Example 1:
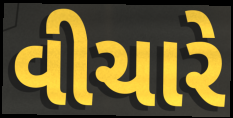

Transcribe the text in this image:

વીચારે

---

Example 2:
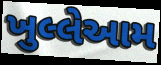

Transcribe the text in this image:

ખુલ્લેઆમ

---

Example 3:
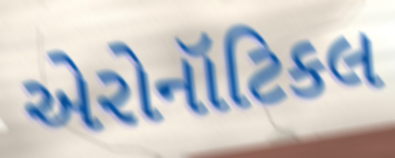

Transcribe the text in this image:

એરોનૉટિકલ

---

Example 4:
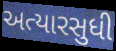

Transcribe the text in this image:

અત્યારસુધી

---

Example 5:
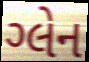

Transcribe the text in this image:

ગ્લેન